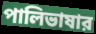
পালিভাষার